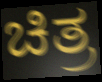
ಚಿತ್ರ